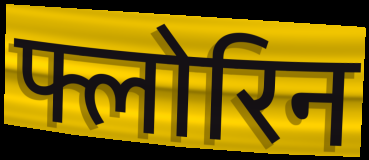
फ्लोरिन